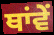
ਥਾਂਵੇਂ